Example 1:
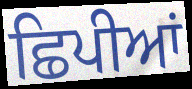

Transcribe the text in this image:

ਛਿਪੀਆਂ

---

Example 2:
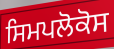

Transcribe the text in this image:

ਸਿਮਪਲੋਕੋਸ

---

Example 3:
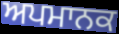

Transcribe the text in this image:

ਅਪਮਾਨਕ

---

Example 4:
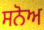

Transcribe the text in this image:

ਸਨੋਅ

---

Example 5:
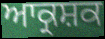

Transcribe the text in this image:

ਆਕ੍ਰਸ਼ਕ